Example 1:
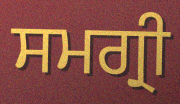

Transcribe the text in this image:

ਸਮਗ੍ਰੀ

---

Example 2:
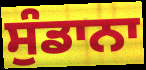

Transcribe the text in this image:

ਸੁੰਡਾਨਾ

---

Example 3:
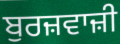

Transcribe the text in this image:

ਬੁਰਜ਼ਵਾਜ਼ੀ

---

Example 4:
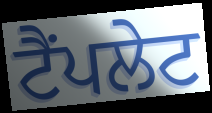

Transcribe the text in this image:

ਟੈਂਪਲੇਟ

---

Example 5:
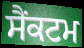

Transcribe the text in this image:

ਸੈੰਕਟਮ